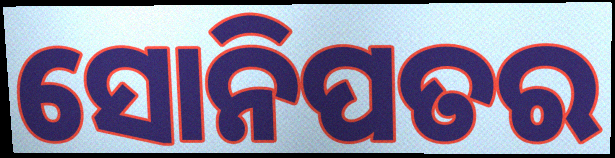
ସୋନିପତର